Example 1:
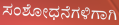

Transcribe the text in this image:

ಸಂಶೋಧನೆಗಳಿಗಾಗಿ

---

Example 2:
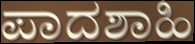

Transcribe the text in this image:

ಪಾದಶಾಹಿ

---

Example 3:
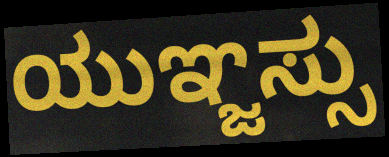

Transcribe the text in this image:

ಯುಞ್ಜಸ್ಸು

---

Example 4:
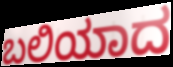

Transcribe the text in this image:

ಬಲಿಯಾದ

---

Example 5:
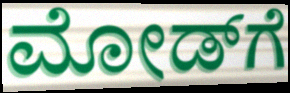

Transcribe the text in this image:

ಮೋಡ್‌ಗೆ